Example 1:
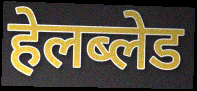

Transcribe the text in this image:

हेलब्लेड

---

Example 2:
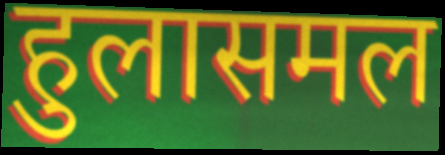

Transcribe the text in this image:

हुलासमल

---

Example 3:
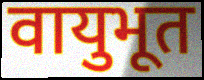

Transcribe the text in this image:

वायुभूत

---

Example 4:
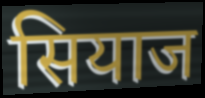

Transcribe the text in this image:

सियाज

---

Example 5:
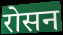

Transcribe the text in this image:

रोसन